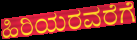
ಹಿರಿಯರವರೆಗೆ